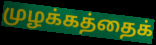
முழக்கத்தைக்